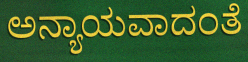
ಅನ್ಯಾಯವಾದಂತೆ